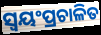
ସ୍ୱୟଂପ୍ରଚାଳିତ